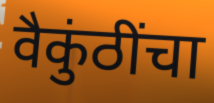
वैकुंठींचा